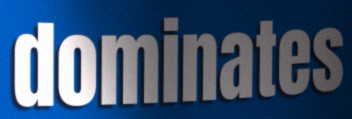
dominates